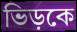
ভিড়কে